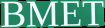
BMET